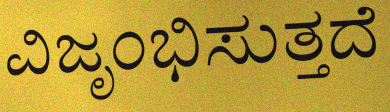
ವಿಜೃಂಭಿಸುತ್ತದೆ